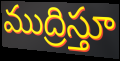
ముద్రిస్తూ